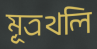
মূত্রথলি